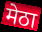
मेठा